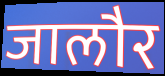
जालौर